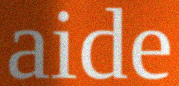
aide